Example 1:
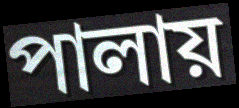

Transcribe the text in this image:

পালায়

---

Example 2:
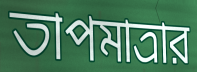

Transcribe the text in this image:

তাপমাত্রার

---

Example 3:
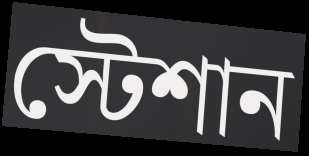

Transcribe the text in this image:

স্টেশান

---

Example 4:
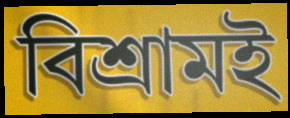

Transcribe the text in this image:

বিশ্রামই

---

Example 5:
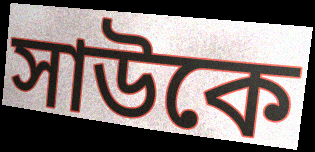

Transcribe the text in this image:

সাউকে